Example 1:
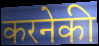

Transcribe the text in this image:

करनेकी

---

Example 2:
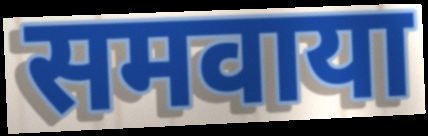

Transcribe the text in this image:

समवाया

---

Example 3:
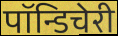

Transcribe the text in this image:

पॉन्डिचेरी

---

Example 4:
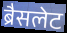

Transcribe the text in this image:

ब्रैसलेट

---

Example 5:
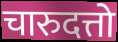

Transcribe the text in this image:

चारुदत्तो